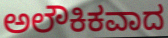
ಅಲೌಕಿಕವಾದ